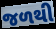
જળથી